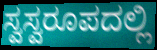
ಸ್ವಸ್ವರೂಪದಲ್ಲಿ